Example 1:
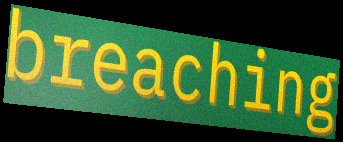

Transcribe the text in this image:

breaching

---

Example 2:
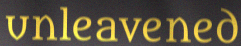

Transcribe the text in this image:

unleavened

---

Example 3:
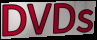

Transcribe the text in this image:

DVDs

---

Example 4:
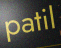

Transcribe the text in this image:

patil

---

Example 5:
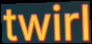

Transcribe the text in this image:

twirl